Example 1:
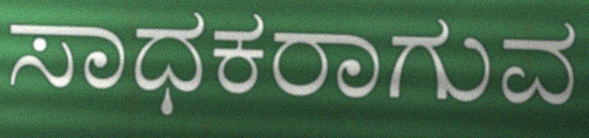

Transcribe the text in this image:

ಸಾಧಕರಾಗುವ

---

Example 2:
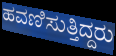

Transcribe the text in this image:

ಹವಣಿಸುತ್ತಿದ್ದರು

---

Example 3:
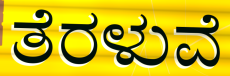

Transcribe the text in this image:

ತೆರಳುವೆ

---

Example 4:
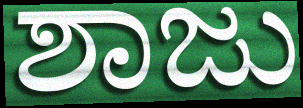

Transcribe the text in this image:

ಶಾಜು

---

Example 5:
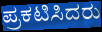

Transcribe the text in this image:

ಪ್ರಕಟಿಸಿದರು